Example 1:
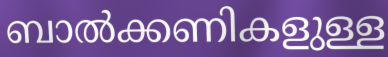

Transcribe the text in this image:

ബാൽക്കണികളുള്ള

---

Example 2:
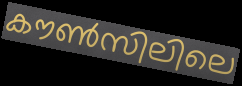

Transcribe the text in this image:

കൗൺസിലിലെ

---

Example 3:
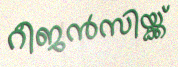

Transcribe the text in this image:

റീജൻസിയ്ക്ക്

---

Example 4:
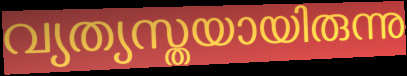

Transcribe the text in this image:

വ്യത്യസ്തയായിരുന്നു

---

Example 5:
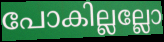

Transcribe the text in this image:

പോകില്ലല്ലോ